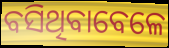
ବସିଥିବାବେଳେ